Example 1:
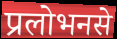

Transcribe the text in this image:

प्रलोभनसे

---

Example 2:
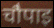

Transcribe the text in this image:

चौपाइ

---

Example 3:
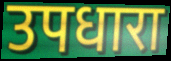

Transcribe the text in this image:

उपधारा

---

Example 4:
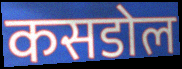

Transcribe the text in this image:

कसडोल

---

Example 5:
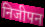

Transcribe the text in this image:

निजीपन